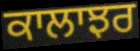
ਕਾਲਾਝਰ